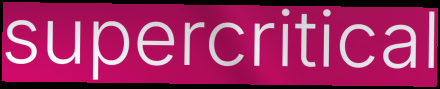
supercritical